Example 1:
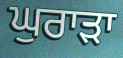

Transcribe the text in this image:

ਘੁਰਾੜਾ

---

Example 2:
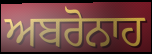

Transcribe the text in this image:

ਅਬਰੋਨਾਹ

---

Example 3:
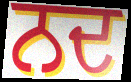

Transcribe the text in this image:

ਨਦ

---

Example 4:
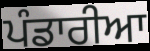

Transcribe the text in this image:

ਪੰਡਾਰੀਆ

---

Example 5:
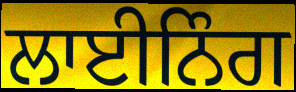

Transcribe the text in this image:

ਲਾਈਨਿੰਗ